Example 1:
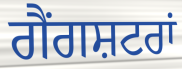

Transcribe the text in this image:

ਗੈਂਗਸ਼ਟਰਾਂ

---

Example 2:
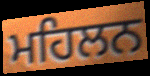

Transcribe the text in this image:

ਮਹਿਲਨ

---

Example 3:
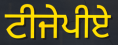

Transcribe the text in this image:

ਟੀਜੇਪੀਏ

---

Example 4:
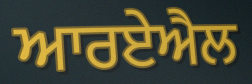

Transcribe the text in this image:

ਆਰਏਐਲ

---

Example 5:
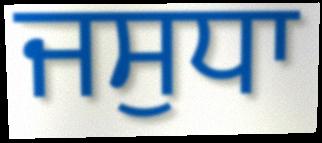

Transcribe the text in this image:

ਜਸੁਧਾ